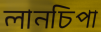
লানচিপা